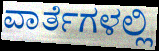
ವಾರ್ತೆಗಳಲ್ಲಿ